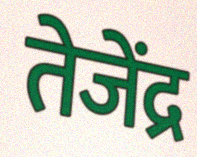
तेजेंद्र